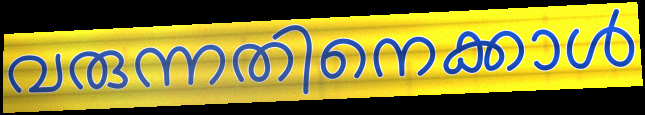
വരുന്നതിനെക്കാൾ